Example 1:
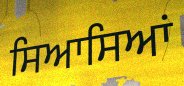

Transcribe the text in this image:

ਸਿਆਸਿਆਂ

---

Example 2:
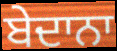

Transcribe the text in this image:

ਬੇਦਾਨਾ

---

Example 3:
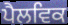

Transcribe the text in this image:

ਪੈਲਵਿਕ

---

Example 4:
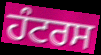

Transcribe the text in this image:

ਹੰਟਰਸ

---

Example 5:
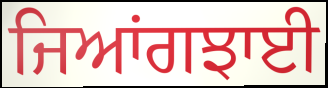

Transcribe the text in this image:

ਜਿਆਂਗਝਾਈ